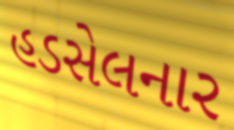
હડસેલનાર